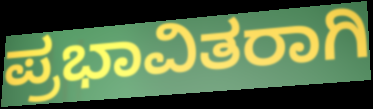
ಪ್ರಭಾವಿತರಾಗಿ